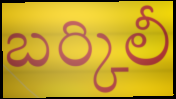
బర్కిలీ